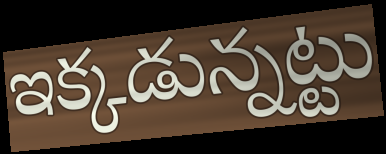
ఇక్కడున్నట్టు